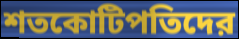
শতকোটিপতিদের